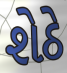
શેઠે